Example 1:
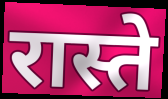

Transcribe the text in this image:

रास्ते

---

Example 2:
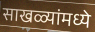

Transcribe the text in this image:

साखळ्यांमध्ये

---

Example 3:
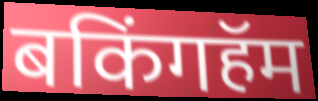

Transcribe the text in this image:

बकिंगहॅम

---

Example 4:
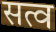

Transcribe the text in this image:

सत्व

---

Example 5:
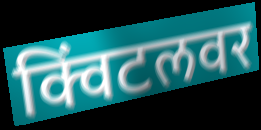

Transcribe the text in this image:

क्विंटलवर